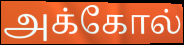
அக்கோல்